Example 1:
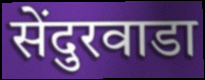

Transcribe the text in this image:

सेंदुरवाडा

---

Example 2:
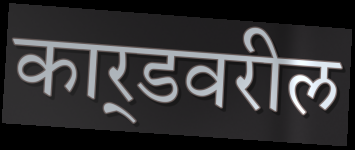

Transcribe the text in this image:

कार्डवरील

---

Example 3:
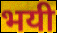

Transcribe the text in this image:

भयी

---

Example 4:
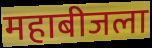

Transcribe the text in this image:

महाबीजला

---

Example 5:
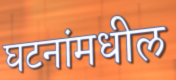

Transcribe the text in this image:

घटनांमधील